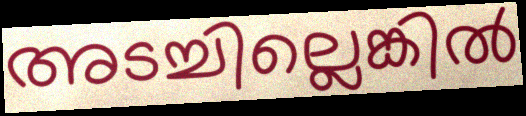
അടച്ചില്ലെങ്കിൽ